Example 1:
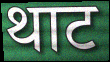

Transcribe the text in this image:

थाट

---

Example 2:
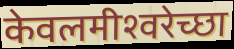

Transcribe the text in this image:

केवलमीश्वरेच्छा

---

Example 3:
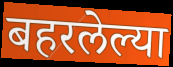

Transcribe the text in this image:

बहरलेल्या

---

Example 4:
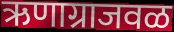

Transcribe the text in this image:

ऋणाग्राजवळ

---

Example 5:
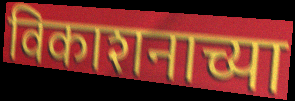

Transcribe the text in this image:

विकाशनाच्या